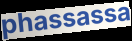
phassassa